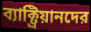
ব্যাক্ট্রিয়ানদের